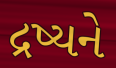
દ્રષ્યને